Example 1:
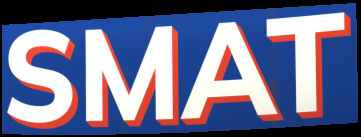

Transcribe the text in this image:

SMAT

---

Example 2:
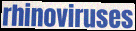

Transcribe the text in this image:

rhinoviruses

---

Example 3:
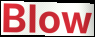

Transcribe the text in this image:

Blow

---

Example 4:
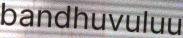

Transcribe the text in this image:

bandhuvuluu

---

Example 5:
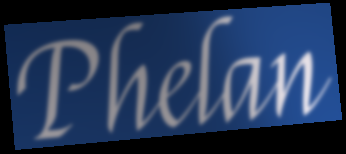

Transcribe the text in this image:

Phelan